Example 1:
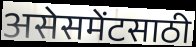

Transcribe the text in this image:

असेसमेंटसाठी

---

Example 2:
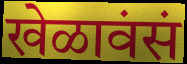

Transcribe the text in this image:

खेळावंसं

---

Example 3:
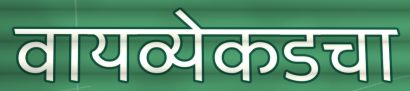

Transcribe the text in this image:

वायव्येकडचा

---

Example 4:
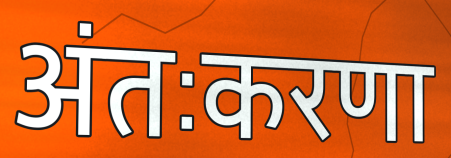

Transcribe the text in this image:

अंतःकरणा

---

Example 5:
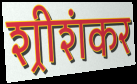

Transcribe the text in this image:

श्रीशंकर